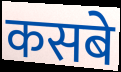
कसबे